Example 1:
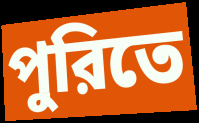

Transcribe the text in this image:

পুরিতে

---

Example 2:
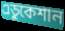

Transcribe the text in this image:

এডুকেশান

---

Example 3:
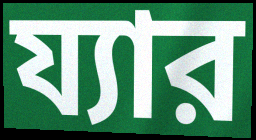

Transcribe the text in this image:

য্যার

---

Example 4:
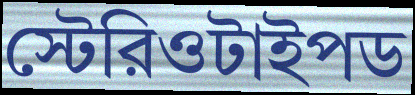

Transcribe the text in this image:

স্টেরিওটাইপড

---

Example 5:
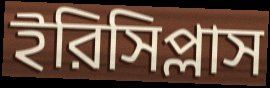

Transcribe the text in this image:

ইরিসিপ্লাস